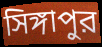
সিঙ্গাপুর